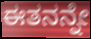
ಈತನನ್ನೇ